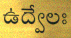
ఉద్వేలః